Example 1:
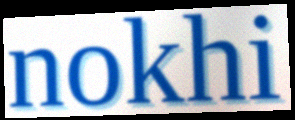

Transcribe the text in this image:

nokhi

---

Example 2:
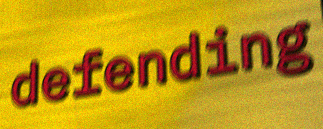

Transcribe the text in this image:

defending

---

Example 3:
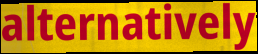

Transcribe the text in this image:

alternatively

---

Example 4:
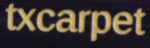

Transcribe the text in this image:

txcarpet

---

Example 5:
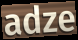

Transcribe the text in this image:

adze